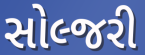
સોલ્જરી